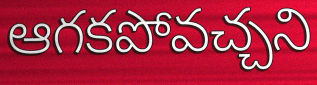
ఆగకపోవచ్చని